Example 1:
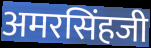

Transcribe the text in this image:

अमरसिंहजी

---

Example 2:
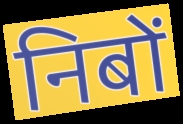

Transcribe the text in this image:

निबों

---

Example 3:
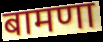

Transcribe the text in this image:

बामणा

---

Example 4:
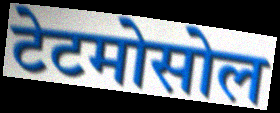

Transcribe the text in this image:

टेटमोसोल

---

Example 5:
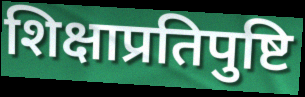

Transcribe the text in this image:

शिक्षाप्रतिपुष्टि